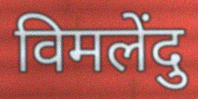
विमलेंदु